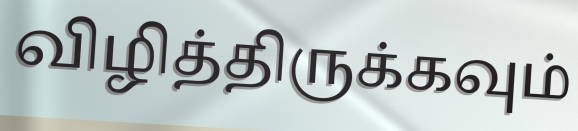
விழித்திருக்கவும்